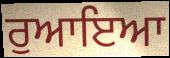
ਰੁਆਇਆ